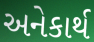
અનેકાર્થ